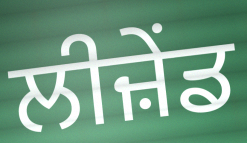
ਲੀਜ਼ੇਂਡ